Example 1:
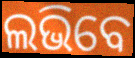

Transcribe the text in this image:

ଲଭିବେ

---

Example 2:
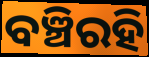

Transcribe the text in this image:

ବଞ୍ଚିରହି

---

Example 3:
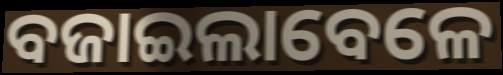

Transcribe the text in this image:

ବଜାଇଲାବେଳେ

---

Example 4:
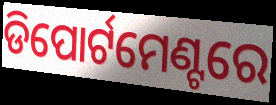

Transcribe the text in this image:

ଡିପୋର୍ଟମେଣ୍ଟରେ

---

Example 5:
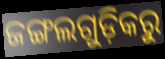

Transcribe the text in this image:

ଜଙ୍ଗଲଗୁଡ଼ିକରୁ